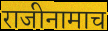
राजीनामाच